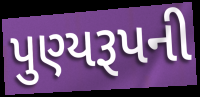
પુણ્યરૂપની